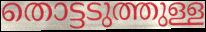
തൊട്ടടുത്തുള്ള